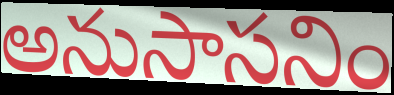
అనుసాసనిం